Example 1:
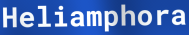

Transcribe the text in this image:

Heliamphora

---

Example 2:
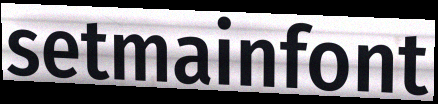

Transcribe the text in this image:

setmainfont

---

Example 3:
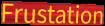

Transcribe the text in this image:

Frustation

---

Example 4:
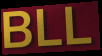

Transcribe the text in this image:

BLL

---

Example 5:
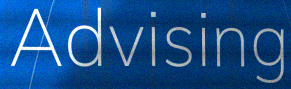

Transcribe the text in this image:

Advising